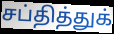
சப்தித்துக்